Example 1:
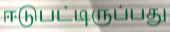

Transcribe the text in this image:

ஈடுபட்டிருப்பது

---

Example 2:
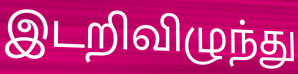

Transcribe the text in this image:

இடறிவிழுந்து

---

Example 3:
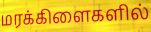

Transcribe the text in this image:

மரக்கிளைகளில்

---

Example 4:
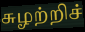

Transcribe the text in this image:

சுழற்றிச்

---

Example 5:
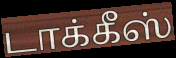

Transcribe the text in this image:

டாக்கீஸ்